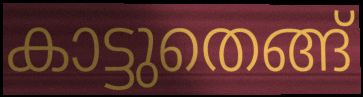
കാട്ടുതെങ്ങ്